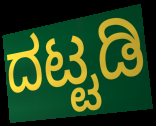
ದಟ್ಟಡಿ